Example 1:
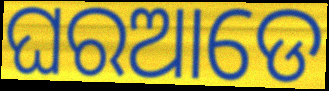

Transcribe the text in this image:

ଘରଆଡେ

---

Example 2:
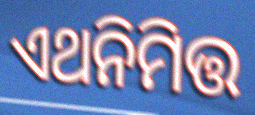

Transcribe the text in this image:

ଏଥନିମିତ୍ତ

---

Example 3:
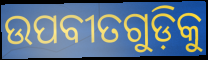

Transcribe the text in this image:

ଉପବୀତଗୁଡ଼ିକୁ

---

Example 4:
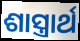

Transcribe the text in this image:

ଶାସ୍ତ୍ରାର୍ଥ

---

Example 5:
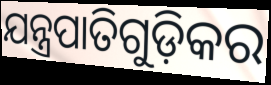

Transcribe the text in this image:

ଯନ୍ତ୍ରପାତିଗୁଡ଼ିକର